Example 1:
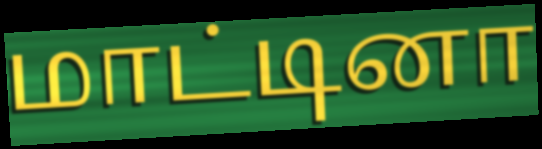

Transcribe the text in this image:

மாட்டினா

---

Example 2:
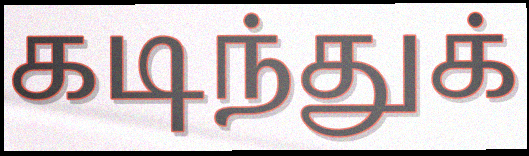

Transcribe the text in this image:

கடிந்துக்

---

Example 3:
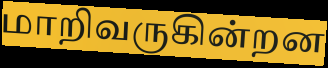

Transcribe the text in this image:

மாறிவருகின்றன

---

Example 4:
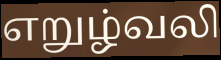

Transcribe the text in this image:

எறுழ்வலி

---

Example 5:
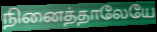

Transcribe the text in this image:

நினைத்தாலேயே